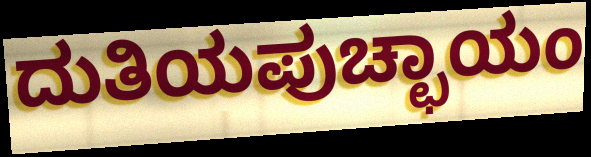
ದುತಿಯಪುಚ್ಛಾಯಂ